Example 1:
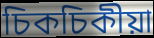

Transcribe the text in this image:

চিকচিকীয়া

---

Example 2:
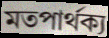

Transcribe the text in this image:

মতপাৰ্থক্য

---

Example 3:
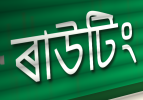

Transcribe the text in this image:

ৰাউটিং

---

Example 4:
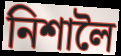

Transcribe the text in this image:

নিশালৈ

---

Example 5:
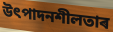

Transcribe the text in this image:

উৎপাদনশীলতাৰ